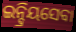
ଇନ୍ଦ୍ରିୟସେବା